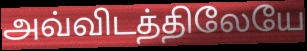
அவ்விடத்திலேயே